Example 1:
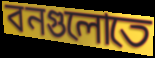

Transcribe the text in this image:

বনগুলোতে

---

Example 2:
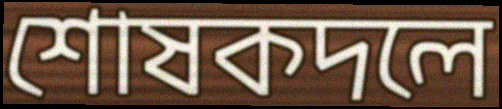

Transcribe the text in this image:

শোষকদলে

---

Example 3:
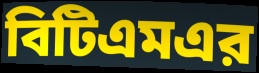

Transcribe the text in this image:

বিটিএমএর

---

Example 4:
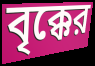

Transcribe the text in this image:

বৃক্কের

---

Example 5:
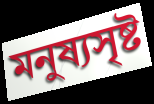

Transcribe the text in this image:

মনুষ্যসৃষ্ট